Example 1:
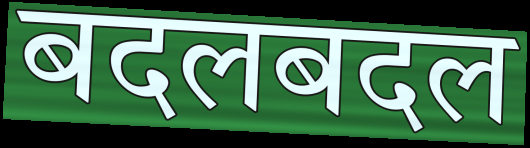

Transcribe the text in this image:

बदलबदल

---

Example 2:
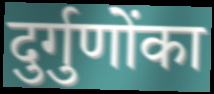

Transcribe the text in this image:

दुर्गुणोंका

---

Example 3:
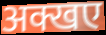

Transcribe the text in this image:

अक्खए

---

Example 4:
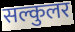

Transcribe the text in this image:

सल्कुलर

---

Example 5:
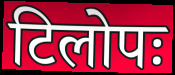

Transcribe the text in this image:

टिलोपः